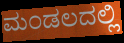
ಮಂಡಲದಲ್ಲಿ